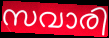
സവാരി